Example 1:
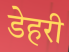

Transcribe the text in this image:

डेहरी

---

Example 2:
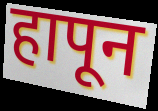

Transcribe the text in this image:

हापून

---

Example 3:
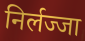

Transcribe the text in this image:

निर्लज्जा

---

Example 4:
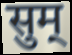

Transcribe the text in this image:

सुम्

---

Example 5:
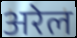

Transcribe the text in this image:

अरेल